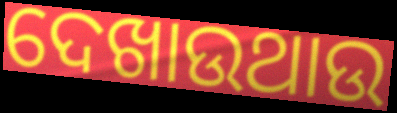
ଦେଖାଉଥାଉ